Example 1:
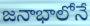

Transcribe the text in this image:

జనాభాలోనే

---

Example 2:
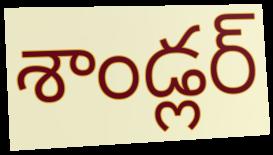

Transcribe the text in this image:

శాండ్లర్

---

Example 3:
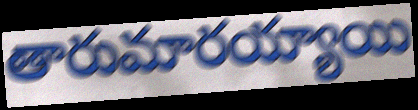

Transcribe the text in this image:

తారుమారయ్యాయి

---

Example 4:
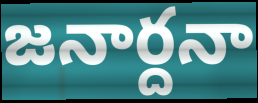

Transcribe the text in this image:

జనార్దనా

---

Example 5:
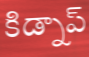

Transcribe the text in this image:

కిడ్నాప్